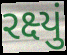
રક્ષ્યું